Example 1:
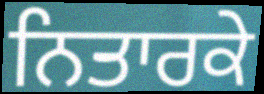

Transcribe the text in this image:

ਨਿਤਾਰਕੇ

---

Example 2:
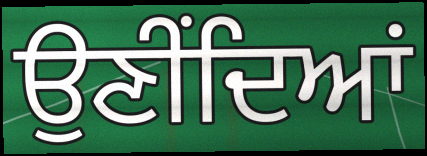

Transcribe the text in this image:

ਉਣੀਂਦਿਆਂ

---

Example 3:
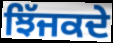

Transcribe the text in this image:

ਝਿੱਜਕਦੇ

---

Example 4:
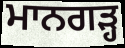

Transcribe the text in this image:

ਮਾਨਗੜ੍ਹ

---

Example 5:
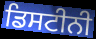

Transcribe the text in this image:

ਡਿਸਟੀਨੀ